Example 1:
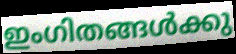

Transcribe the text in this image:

ഇംഗിതങ്ങൾക്കു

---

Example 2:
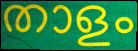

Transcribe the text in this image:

താളം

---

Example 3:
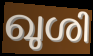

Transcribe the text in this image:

ഖുശി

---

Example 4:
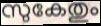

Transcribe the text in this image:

സുകേതും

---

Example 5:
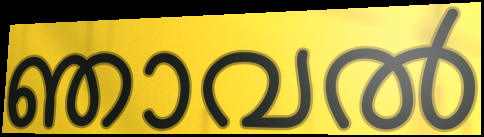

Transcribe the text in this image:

ഞാവൽ